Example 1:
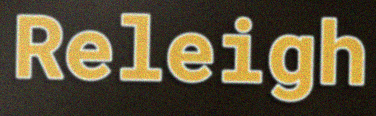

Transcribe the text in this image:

Releigh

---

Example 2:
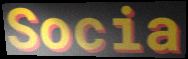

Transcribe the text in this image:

Socia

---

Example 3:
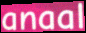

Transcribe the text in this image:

anaal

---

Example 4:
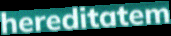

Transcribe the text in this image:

hereditatem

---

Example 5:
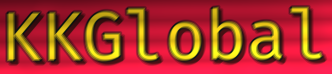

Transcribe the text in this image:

KKGlobal